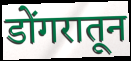
डोंगरातून